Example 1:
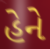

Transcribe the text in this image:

હેને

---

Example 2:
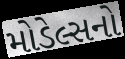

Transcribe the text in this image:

મોડેલ્સનો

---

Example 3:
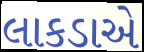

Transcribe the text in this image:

લાકડાએ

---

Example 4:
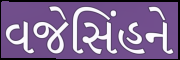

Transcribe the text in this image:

વજેસિંહને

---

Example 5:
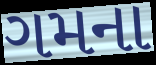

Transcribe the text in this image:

ગમના